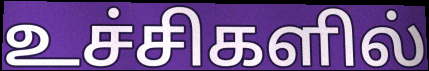
உச்சிகளில்